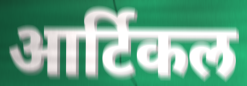
आर्टिकल